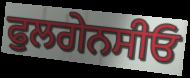
ਫੁਲਗੇਨਸੀਓ